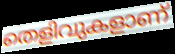
തെളിവുകളാണ്